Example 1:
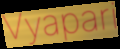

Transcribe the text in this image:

Vyapari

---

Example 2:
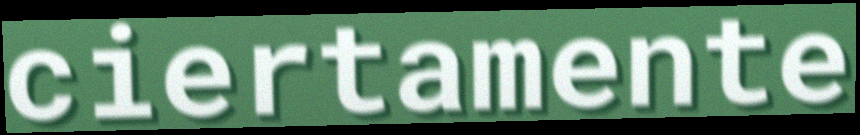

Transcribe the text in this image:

ciertamente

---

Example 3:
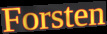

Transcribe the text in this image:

Forsten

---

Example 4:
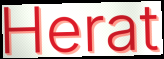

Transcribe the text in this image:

Herat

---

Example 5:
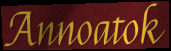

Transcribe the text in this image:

Annoatok